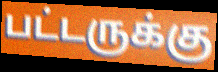
பட்டருக்கு